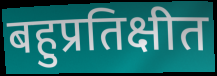
बहुप्रतिक्षीत